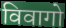
विवागो